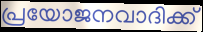
പ്രയോജനവാദിക്ക്